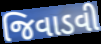
જિવાડવી